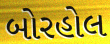
બોરહોલ